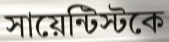
সায়েন্টিস্টকে